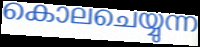
കൊലചെയ്യുന്ന